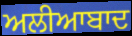
ਅਲੀਆਬਾਦ